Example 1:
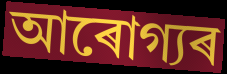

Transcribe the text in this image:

আৰোগ্যৰ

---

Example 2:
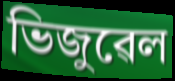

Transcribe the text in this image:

ভিজুৱেল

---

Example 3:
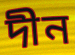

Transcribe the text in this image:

দীন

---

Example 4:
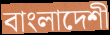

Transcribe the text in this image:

বাংলাদেশী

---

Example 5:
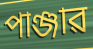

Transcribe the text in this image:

পাঞ্জাৱ